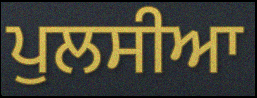
ਪੁਲਸੀਆ